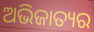
ଅଭିଜାତ୍ୟର